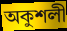
অকুশলী